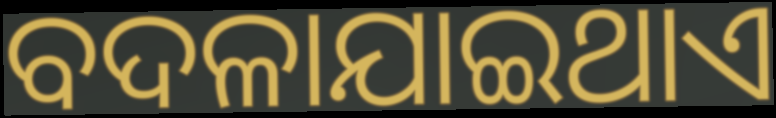
ବଦଳାଯାଇଥାଏ